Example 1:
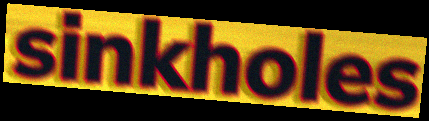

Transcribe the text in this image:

sinkholes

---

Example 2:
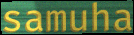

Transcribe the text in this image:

samuha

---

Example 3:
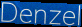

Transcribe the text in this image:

Denzel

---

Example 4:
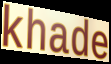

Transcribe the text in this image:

khade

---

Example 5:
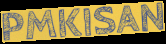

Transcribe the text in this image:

PMKISAN